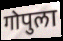
गोपुला